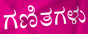
ಗಣಿತಗಳು